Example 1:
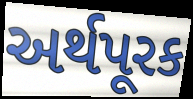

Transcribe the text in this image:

અર્થપૂરક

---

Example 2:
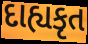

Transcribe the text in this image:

દાહ્યકૃત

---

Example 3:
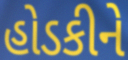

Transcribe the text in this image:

હોડકીને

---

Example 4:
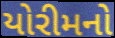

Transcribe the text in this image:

યોરીમનો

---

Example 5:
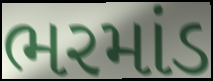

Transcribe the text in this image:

ભરમાંડ